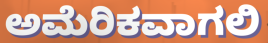
ಅಮೆರಿಕವಾಗಲಿ